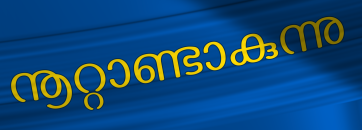
നൂറ്റാണ്ടാകുന്നു